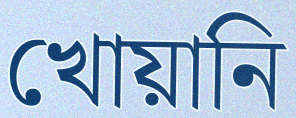
খোয়ানি